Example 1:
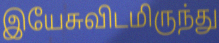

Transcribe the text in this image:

இயேசுவிடமிருந்து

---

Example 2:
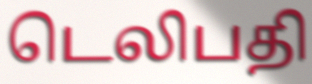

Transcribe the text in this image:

டெலிபதி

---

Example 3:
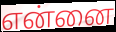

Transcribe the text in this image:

என்னை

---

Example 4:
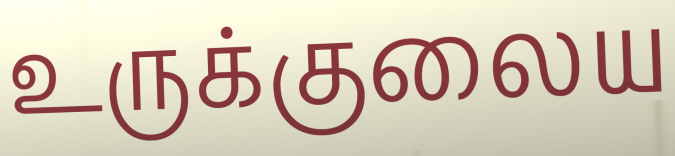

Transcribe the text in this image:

உருக்குலைய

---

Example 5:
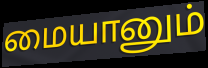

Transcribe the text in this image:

மையானும்